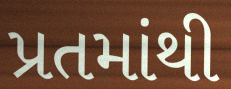
પ્રતમાંથી